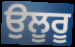
ਉਲੂਰੂ